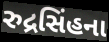
રુદ્રસિંહના